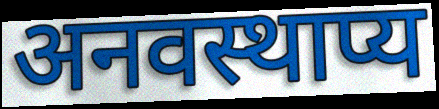
अनवस्थाप्य